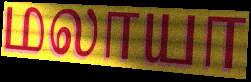
மலாயா